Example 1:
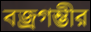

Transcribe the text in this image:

বজ্রগম্ভীর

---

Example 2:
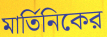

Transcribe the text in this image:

মার্তিনিকের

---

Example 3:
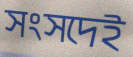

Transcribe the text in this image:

সংসদেই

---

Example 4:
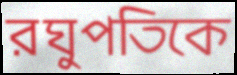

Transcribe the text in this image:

রঘুপতিকে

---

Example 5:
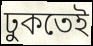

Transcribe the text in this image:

ঢুকতেই